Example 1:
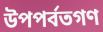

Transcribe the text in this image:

উপপর্বতগণ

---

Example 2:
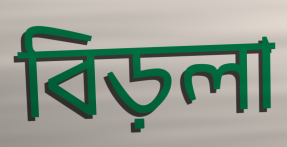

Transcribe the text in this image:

বিড়লা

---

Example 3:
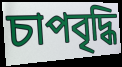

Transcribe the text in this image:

চাপবৃদ্ধি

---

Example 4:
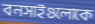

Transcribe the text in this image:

বনসাইগুলোকে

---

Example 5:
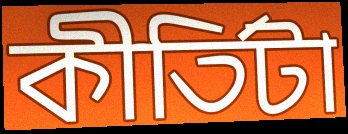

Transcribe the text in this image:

কীর্তিটা